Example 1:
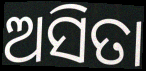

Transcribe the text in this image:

ଅସିତା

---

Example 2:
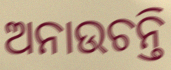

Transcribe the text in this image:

ଅନାଉଚନ୍ତି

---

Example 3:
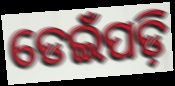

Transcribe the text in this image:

ଡେଇଁପଡ଼ି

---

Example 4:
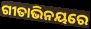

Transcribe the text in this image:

ଗୀତାଭିନୟରେ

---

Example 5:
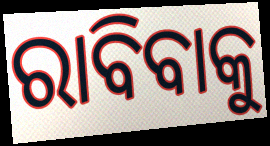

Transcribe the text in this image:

ରାବିବାକୁ